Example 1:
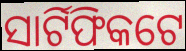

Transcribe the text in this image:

ସାର୍ଟିଫିକଟେ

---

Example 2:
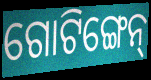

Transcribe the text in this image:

ଗୋଟିଙ୍ଗେନ୍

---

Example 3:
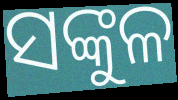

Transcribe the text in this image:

ସଙ୍କୁଳ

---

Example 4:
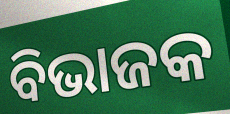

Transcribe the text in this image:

ବିଭାଜକ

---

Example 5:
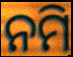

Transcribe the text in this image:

ନମି